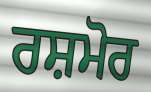
ਰਸ਼ਮੋਰ